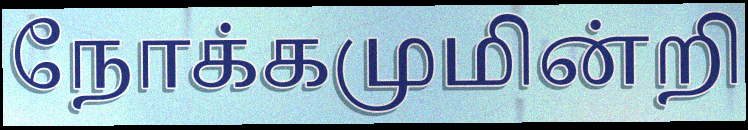
நோக்கமுமின்றி